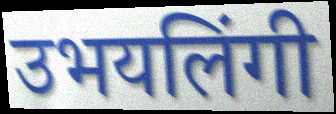
उभयलिंगी